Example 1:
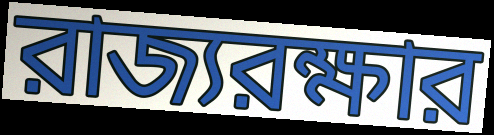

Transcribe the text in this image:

রাজ্যরক্ষার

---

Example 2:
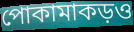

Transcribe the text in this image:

পোকামাকড়ও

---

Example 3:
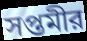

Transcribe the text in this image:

সপ্তমীর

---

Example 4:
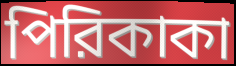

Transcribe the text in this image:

পিরিকাকা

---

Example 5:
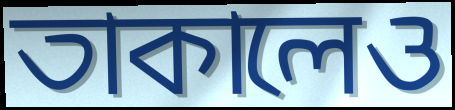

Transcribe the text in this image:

তাকালেও